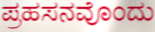
ಪ್ರಹಸನವೊಂದು